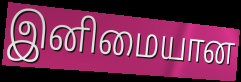
இனிமையான